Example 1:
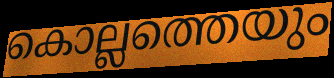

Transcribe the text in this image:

കൊല്ലത്തെയും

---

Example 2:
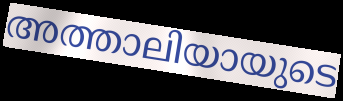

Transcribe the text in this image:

അത്താലിയായുടെ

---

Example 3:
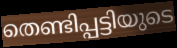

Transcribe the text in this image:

തെണ്ടിപ്പട്ടിയുടെ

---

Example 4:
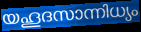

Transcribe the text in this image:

യഹൂദസാന്നിധ്യം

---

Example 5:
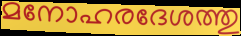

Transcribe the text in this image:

മനോഹരദേശത്തു